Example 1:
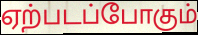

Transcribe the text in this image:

ஏற்படப்போகும்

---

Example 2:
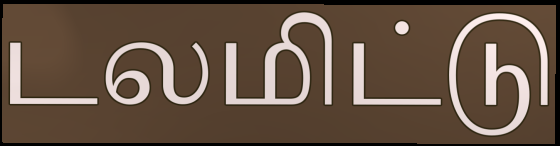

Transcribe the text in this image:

டலமிட்டு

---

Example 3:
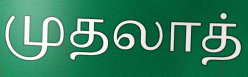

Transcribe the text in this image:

முதலாத்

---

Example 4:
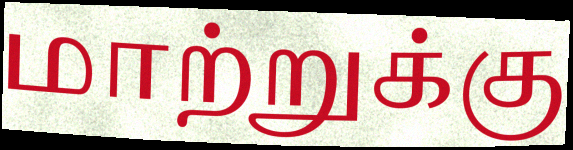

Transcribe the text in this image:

மாற்றுக்கு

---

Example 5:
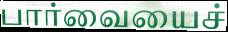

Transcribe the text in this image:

பார்வையைச்